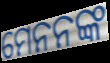
ମେନନଙ୍କ